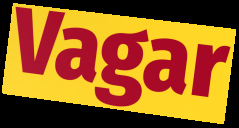
Vagar